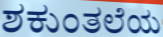
ಶಕುಂತಲೆಯ